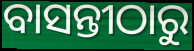
ବାସନ୍ତୀଠାରୁ